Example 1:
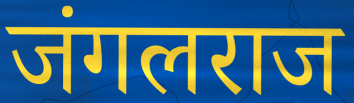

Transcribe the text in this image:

जंगलराज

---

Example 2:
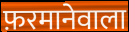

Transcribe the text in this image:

फ़रमानेवाला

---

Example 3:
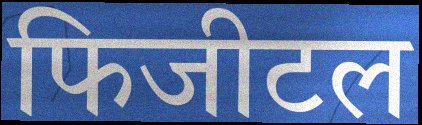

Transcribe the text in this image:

फिजीटल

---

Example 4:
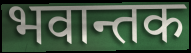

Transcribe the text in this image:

भवान्तक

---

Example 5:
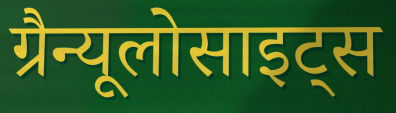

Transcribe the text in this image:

ग्रैन्यूलोसाइट्स